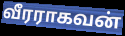
வீரராகவன்